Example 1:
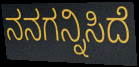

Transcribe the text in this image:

ನನಗನ್ನಿಸಿದೆ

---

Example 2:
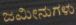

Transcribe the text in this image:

ಜಮೀನುಗಳು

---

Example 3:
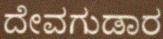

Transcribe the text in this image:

ದೇವಗುಡಾರ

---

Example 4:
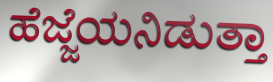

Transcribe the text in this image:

ಹೆಜ್ಜೆಯನಿಡುತ್ತಾ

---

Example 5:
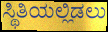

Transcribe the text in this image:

ಸ್ಥಿತಿಯಲ್ಲಿಡಲು